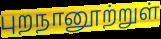
புறநானூற்றுள்